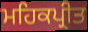
ਮਹਿਕਪ੍ਰੀਤ